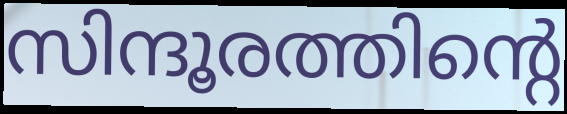
സിന്ദൂരത്തിന്റെ